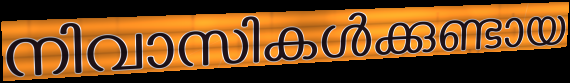
നിവാസികൾക്കുണ്ടായ